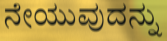
ನೇಯುವುದನ್ನು